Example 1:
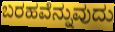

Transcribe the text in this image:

ಬರಹವೆನ್ನುವುದು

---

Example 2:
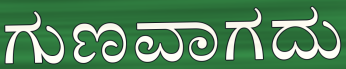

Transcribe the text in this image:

ಗುಣವಾಗದು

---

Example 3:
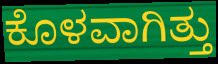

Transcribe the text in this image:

ಕೊಳವಾಗಿತ್ತು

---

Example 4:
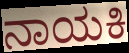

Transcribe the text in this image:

ನಾಯಕಿ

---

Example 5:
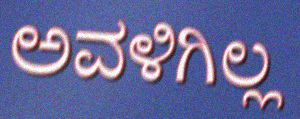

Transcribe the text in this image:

ಅವಳಿಗಿಲ್ಲ